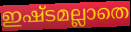
ഇഷ്ടമല്ലാതെ